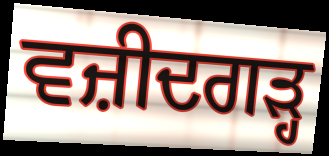
ਵਜ਼ੀਦਗੜ੍ਹ